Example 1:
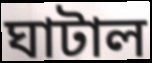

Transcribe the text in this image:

ঘাটাল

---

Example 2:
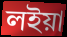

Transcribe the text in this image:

লইয়া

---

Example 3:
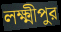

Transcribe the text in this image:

লক্ষ্মীপুর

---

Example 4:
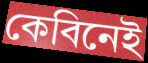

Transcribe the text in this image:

কেবিনেই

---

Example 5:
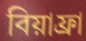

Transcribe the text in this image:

বিয়াফ্রা